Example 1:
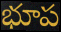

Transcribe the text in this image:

భూప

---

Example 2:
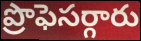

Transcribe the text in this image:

ప్రొఫెసర్గారు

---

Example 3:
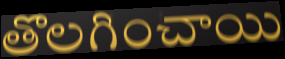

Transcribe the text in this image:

తొలగించాయి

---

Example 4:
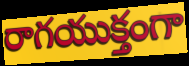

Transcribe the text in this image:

రాగయుక్తంగా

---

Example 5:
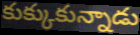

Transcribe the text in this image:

కుక్కుకున్నాడు